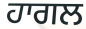
ਹਾਗਲ